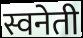
स्वनेती